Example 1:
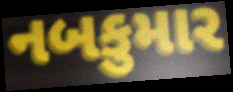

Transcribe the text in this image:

નબકુમાર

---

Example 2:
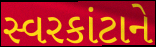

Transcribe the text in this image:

સ્વરકાંટાને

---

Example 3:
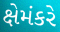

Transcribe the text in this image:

ક્ષેમંકરે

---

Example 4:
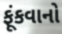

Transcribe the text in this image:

ફૂંકવાનો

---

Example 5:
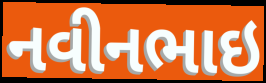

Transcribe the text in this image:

નવીનભાઇ